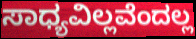
ಸಾಧ್ಯವಿಲ್ಲವೆಂದಲ್ಲ